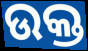
ଉକ୍ତ